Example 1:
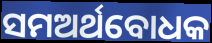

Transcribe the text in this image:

ସମଅର୍ଥବୋଧକ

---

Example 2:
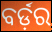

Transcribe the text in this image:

ବର୍ଡ଼ର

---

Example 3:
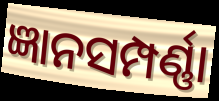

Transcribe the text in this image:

ଜ୍ଞାନସମ୍ପର୍ଣ୍ଣା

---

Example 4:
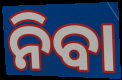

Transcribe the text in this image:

ନିବା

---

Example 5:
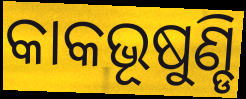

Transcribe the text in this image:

କାକଭୂଷୁଣ୍ଡି